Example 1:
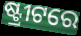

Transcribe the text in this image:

ଷ୍ଟ୍ରୀଟରେ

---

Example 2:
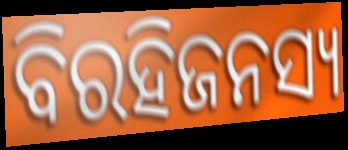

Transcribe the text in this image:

ବିରହିଜନସ୍ୟ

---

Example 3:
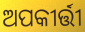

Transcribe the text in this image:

ଅପକୀର୍ତ୍ତୀ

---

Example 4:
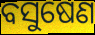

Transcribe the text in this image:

ବସୁଷେଣ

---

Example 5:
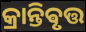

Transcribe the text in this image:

କ୍ରାନ୍ତିଵୃତ୍ତ